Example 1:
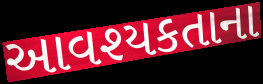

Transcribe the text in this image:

આવશ્યકતાના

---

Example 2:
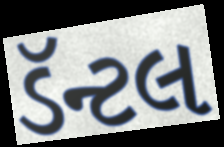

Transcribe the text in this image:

ડૅન્ટલ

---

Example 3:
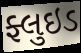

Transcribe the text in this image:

ફ્લુઇડ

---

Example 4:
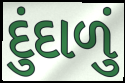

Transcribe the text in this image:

દુંદાળું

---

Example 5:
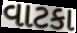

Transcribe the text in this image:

વાટકા